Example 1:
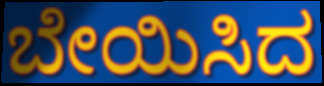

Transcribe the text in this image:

ಬೇಯಿಸಿದ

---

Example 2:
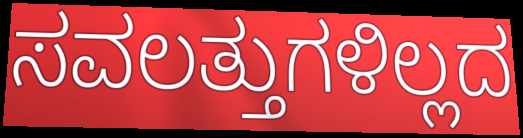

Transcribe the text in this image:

ಸವಲತ್ತುಗಳಿಲ್ಲದ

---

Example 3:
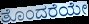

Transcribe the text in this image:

ತೊಂದರೆಯೇ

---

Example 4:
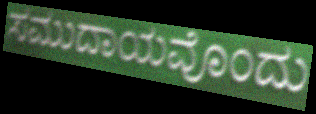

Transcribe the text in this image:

ಸಮುದಾಯವೊಂದು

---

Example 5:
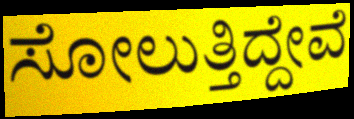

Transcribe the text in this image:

ಸೋಲುತ್ತಿದ್ದೇವೆ